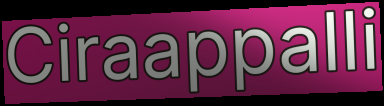
Ciraappalli